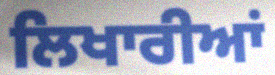
ਲਿਖਾਰੀਆਂ